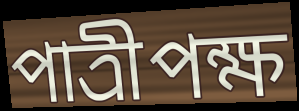
পাত্রীপক্ষ